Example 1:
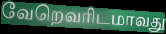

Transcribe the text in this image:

வேறெவரிடமாவது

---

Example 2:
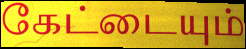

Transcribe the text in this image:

கேட்டையும்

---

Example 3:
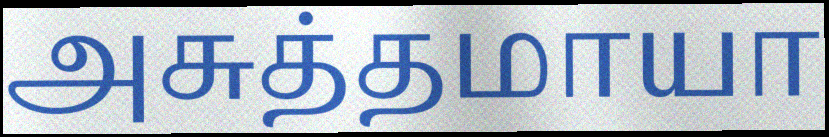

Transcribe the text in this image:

அசுத்தமாயா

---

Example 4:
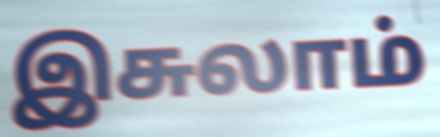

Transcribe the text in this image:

இசுலாம்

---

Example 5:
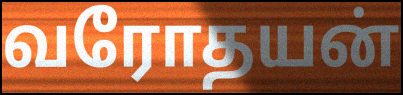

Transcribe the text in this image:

வரோதயன்